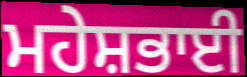
ਮਹੇਸ਼ਭਾਈ